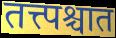
तत्त्पश्चात